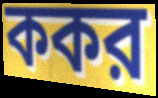
ককর